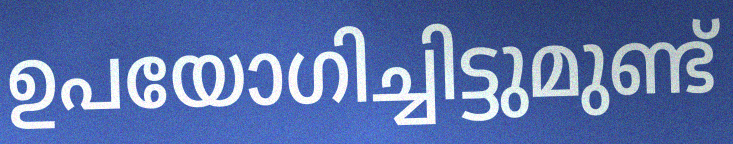
ഉപയോഗിച്ചിട്ടുമുണ്ട്